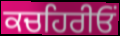
ਕਚਹਿਰੀਓਂ